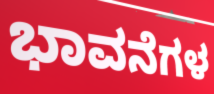
ಭಾವನೆಗಳ